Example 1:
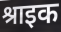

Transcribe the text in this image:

श्राइक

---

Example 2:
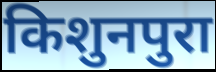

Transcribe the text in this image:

किशुनपुरा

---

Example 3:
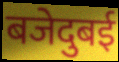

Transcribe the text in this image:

बजेदुबई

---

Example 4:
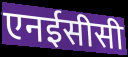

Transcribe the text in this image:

एनईसीसी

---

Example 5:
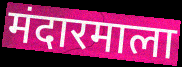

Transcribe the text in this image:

मंदारमाला